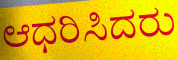
ಆಧರಿಸಿದರು